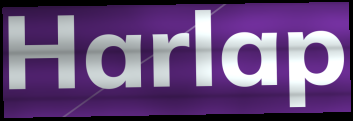
Harlap